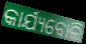
କାର୍ଯ୍ୟବୋଲି